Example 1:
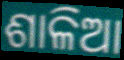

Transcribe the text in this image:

ଶାଳିଆ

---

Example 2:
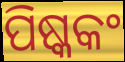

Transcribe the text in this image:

ପିଷ୍କକଂ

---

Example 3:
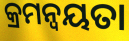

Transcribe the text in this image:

କ୍ରମନ୍ବୟତା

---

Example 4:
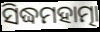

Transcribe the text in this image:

ସିଦ୍ଧମହାତ୍ମା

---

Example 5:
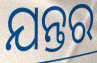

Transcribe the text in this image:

ଯନ୍ତର